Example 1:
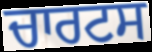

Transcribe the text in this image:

ਚਾਰਟਸ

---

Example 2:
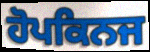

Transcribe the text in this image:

ਹੋਪਕਿਨਜ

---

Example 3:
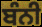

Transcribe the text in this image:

ਬੰਨੀ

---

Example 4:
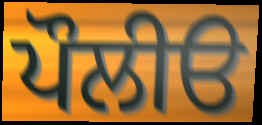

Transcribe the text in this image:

ਪੌਲੀੳ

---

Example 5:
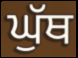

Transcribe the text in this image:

ਘੁੱਥ